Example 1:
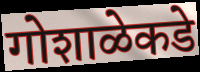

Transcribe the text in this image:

गोशाळेकडे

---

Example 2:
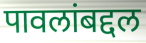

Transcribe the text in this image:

पावलांबद्दल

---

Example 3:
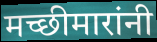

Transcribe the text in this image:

मच्छीमारांनी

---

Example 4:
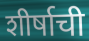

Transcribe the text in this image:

शीर्षाची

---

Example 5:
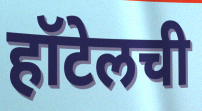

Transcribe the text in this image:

हॉटेलची